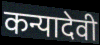
कन्यादेवी